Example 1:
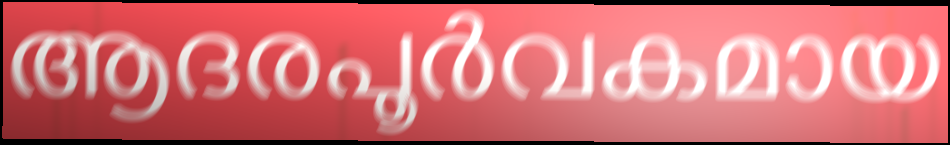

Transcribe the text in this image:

ആദരപൂർവകമായ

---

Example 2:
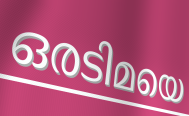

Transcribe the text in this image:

ഒരടിമയെ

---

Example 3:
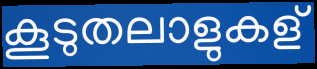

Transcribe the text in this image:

കൂടുതലാളുകള്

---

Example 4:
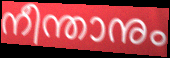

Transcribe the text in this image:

നീന്താനും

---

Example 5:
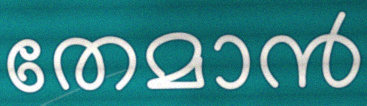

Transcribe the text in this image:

തേമാൻ